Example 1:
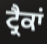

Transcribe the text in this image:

ਟ੍ਰੈਕਾਂ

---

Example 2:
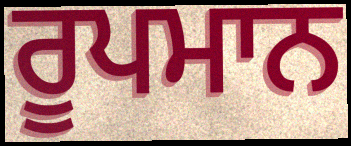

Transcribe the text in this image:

ਰੂਪਮਾਨ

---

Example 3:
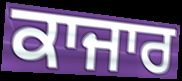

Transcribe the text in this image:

ਕਾਜਾਰ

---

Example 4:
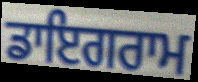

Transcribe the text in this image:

ਡਾਇਗਰਾਮ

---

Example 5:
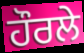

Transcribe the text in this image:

ਹੌਰਲੇ